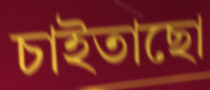
চাইতাছো